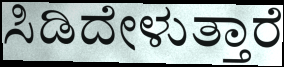
ಸಿಡಿದೇಳುತ್ತಾರೆ